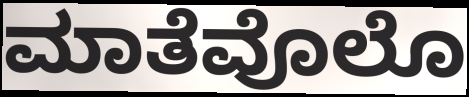
ಮಾತೆವೊಲೊ